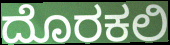
ದೊರಕಲಿ